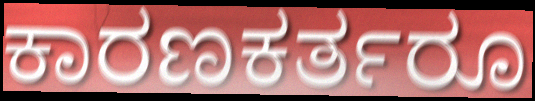
ಕಾರಣಕರ್ತರೂ